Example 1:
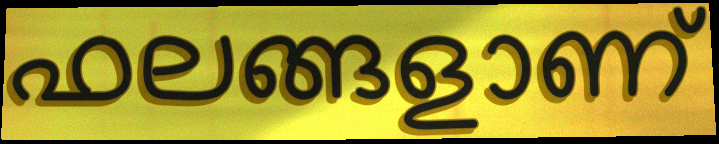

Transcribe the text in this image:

ഫലങ്ങളാണ്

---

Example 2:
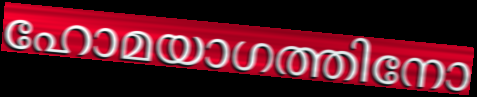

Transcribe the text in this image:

ഹോമയാഗത്തിനോ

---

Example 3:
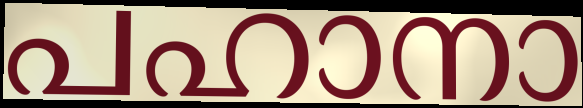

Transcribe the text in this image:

പഹാനാ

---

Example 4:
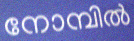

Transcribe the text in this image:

നോമ്പിൽ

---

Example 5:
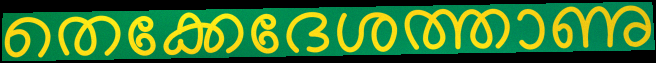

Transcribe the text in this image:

തെക്കേദേശത്താണു